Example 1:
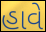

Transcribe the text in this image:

હાવે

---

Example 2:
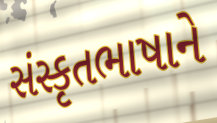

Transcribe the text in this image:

સંસ્કૃતભાષાને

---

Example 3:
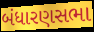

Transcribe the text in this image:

બંધારણસભા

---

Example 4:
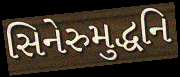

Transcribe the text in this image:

સિનેરુમુદ્ધનિ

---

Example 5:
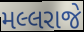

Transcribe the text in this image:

મલ્લરાજે